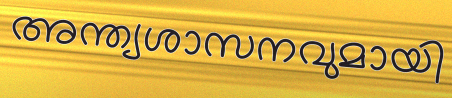
അന്ത്യശാസനവുമായി